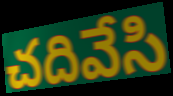
చదివేసి